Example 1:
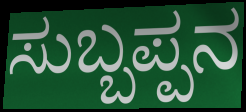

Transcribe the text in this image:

ಸುಬ್ಬಪ್ಪನ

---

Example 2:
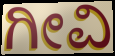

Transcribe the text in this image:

ಗೀವಿ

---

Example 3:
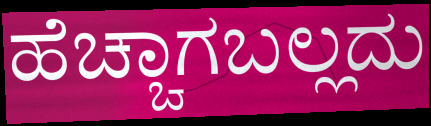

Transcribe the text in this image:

ಹೆಚ್ಚಾಗಬಲ್ಲದು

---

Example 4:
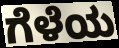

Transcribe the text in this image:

ಗೆಳೆಯ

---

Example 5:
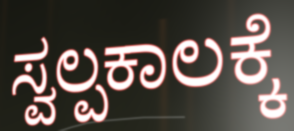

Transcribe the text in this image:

ಸ್ವಲ್ಪಕಾಲಕ್ಕೆ